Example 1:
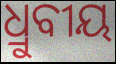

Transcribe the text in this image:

ଧ୍ରୁବୀୟ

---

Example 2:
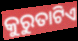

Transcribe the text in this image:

କୁରୁତାଟିଏ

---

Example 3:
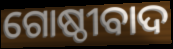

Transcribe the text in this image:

ଗୋଷ୍ଠୀବାଦ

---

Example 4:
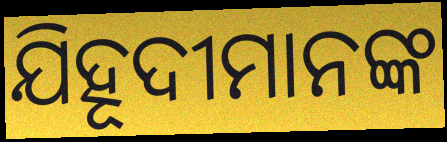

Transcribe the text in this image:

ଯିହୂଦୀମାନଙ୍କ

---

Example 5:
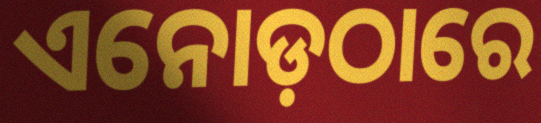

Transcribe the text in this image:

ଏନୋଡ଼ଠାରେ